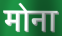
मोना